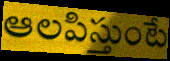
ఆలపిస్తుంటే